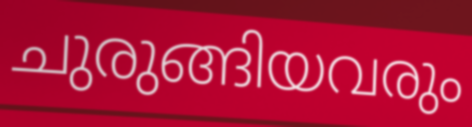
ചുരുങ്ങിയവരും